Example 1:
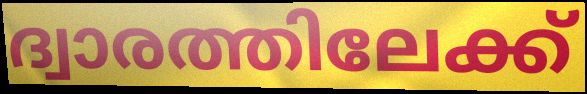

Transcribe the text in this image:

ദ്വാരത്തിലേക്ക്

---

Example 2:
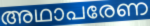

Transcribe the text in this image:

അഥാപരേണ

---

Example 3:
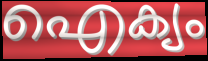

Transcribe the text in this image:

ഐക്യം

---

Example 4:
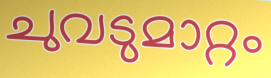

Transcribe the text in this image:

ചുവടുമാറ്റം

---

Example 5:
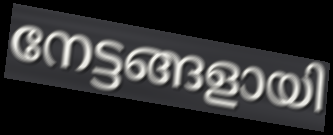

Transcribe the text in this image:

നേട്ടങ്ങളായി